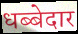
धब्बेदार